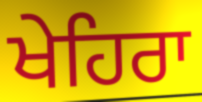
ਖੇਹਿਰਾ